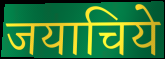
जयाचिये